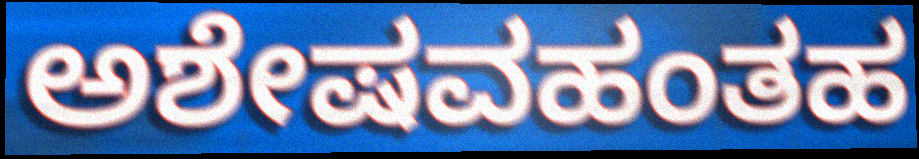
ಅಶೇಷವಹಂತಹ